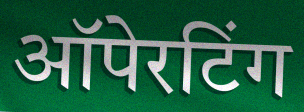
ऑपेरटिंग